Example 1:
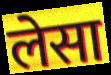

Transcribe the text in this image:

लेसा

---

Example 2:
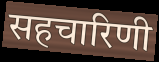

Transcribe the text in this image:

सहचारिणी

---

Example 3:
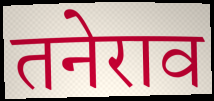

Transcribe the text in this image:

तनेराव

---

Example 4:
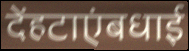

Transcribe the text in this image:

देंहटाएंबधाई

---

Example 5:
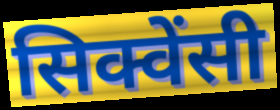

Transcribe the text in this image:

सिक्वेंसी